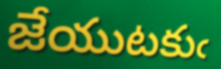
జేయుటకుఁ